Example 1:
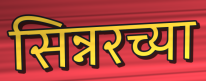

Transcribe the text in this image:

सिन्नरच्या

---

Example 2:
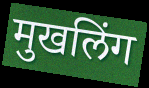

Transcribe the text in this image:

मुखलिंग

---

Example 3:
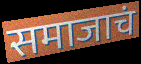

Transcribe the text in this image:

समाजाचं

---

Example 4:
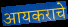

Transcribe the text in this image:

आयकराचे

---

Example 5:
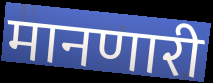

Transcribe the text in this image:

मानणारी